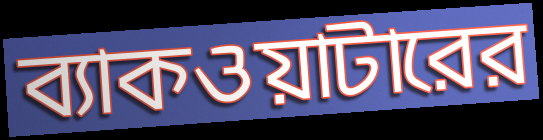
ব্যাকওয়াটারের